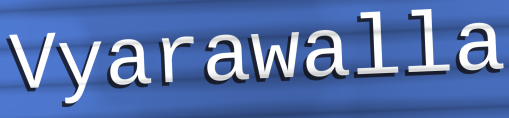
Vyarawalla